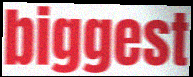
biggest